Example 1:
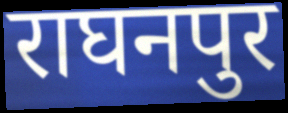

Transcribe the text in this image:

राघनपुर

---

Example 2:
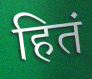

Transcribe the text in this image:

हितं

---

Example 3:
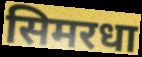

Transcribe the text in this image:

सिमरधा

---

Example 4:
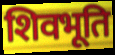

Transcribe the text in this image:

शिवभूति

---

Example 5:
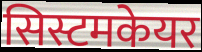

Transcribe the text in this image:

सिस्टमकेयर